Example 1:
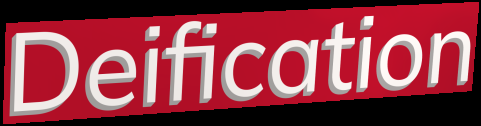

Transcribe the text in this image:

Deification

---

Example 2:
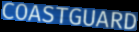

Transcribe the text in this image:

COASTGUARD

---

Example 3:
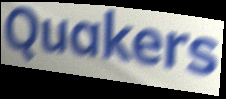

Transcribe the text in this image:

Quakers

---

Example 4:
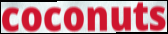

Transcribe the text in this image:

coconuts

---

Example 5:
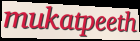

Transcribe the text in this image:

mukatpeeth